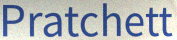
Pratchett